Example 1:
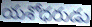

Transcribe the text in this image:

యశోధరుడు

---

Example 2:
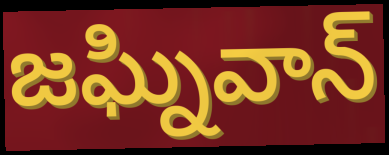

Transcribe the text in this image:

జఘ్నివాన్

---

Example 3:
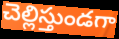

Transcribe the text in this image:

చెల్లిస్తుండగా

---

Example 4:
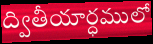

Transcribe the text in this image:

ద్వితీయార్ధములో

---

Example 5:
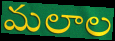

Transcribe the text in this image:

మలాల